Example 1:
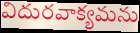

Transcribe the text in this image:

విదురవాక్యమను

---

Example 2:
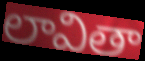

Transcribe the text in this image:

లావితా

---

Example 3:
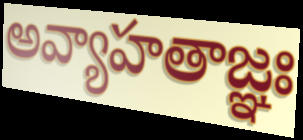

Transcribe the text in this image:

అవ్యాహతాజ్ఞః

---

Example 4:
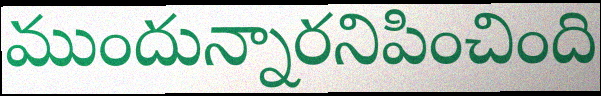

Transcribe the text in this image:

ముందున్నారనిపించింది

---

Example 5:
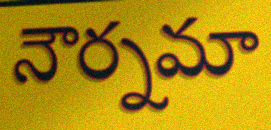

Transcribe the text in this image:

నౌర్నమా